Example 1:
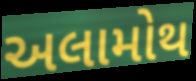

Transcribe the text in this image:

અલામોથ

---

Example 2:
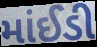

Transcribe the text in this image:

માંઈડી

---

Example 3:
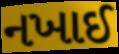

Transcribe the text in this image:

નખાઈ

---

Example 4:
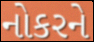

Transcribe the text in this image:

નોકરને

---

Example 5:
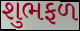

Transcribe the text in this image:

શુભફળ